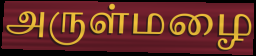
அருள்மழை